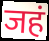
जहं